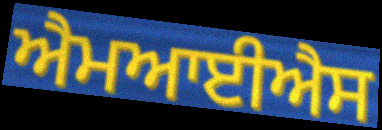
ਐਮਆਈਐਸ